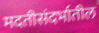
मदतीसंदर्भातील